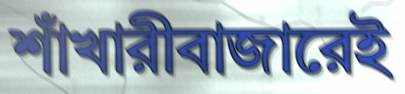
শাঁখারীবাজারেই